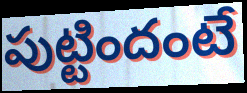
పుట్టిందంటే